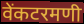
वेंकटरमणी